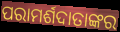
ପରାମର୍ଶଦାତାଙ୍କର